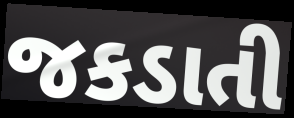
જકડાતી